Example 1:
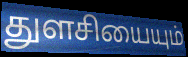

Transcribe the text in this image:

துளசியையும்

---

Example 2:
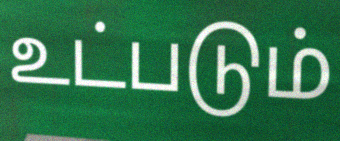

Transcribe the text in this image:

உட்படும்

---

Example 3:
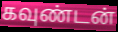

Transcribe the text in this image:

கவுண்டன்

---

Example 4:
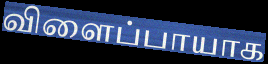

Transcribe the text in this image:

விளைப்பாயாக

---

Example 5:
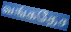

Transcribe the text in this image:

வங்கதேச